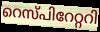
റെസ്പിറേറ്ററി